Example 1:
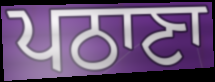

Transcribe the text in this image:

ਪਠਾਣਾ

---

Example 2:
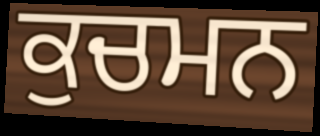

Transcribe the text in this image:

ਕੁਚਮਨ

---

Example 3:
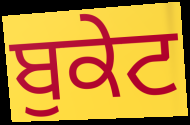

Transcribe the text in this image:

ਬੁਕੇਟ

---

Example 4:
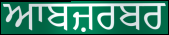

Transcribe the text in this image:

ਆਬਜ਼ਰਬਰ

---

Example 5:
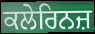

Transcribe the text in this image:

ਕਲੇਰਿਨਜ਼